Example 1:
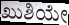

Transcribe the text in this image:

ಖುಶಿಯೇ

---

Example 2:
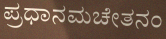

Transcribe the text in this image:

ಪ್ರಧಾನಮಚೇತನಂ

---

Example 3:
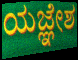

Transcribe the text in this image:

ಯಜ್ಞೇಶ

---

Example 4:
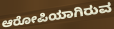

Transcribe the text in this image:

ಆರೋಪಿಯಾಗಿರುವ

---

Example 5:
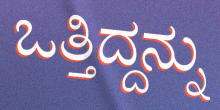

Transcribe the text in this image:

ಒತ್ತಿದ್ದನ್ನು